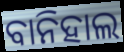
ବାନିହାଲ